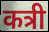
कत्री